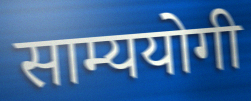
साम्ययोगी